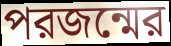
পরজন্মের